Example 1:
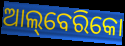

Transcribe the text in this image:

ଆଲ୍‌ବେରିକୋ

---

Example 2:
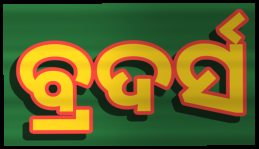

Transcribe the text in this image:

ବ୍ରଦର୍ସ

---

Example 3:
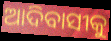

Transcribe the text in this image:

ଆଦିବାସୀକୁ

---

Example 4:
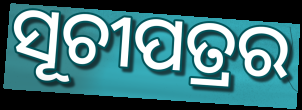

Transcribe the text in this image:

ସୂଚୀପତ୍ରର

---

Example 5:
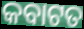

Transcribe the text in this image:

କବାଟତ